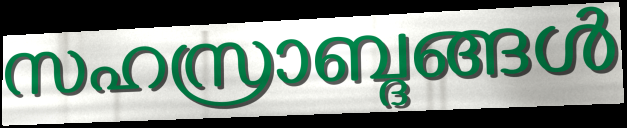
സഹസ്രാബ്ദങ്ങൾ